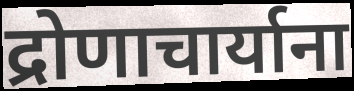
द्रोणाचार्याना